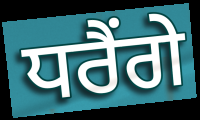
ਧਰੈਂਗੇ